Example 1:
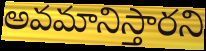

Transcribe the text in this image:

అవమానిస్తారని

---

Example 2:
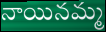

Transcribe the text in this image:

నాయినమ్మ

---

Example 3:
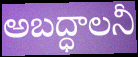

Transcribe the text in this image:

అబద్ధాలనీ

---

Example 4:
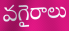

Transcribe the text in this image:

వగైరాలు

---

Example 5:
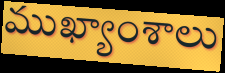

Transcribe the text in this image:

ముఖ్యాంశాలు